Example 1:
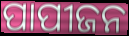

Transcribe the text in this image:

ପାପୀଜନ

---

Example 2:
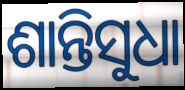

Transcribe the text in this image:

ଶାନ୍ତିସୁଧା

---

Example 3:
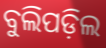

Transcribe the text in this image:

ବୁଲିପଡ଼ିଲ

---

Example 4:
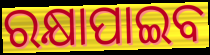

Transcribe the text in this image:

ରକ୍ଷାପାଇବ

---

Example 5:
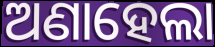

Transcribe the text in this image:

ଅଣାହେଲା